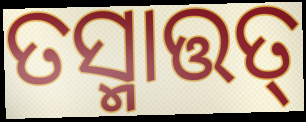
ତସ୍ମାତ୍ତତ୍